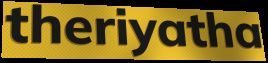
theriyatha